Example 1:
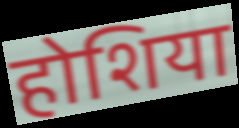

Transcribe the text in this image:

होशिया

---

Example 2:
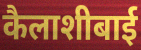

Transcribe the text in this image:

कैलाशीबाई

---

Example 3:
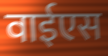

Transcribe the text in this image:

वाईएस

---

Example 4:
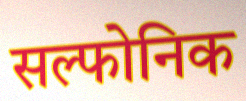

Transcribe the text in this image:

सल्फोनिक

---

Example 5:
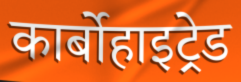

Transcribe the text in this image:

कार्बोहाइट्रेड